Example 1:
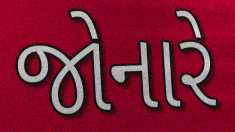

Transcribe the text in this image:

જોનારે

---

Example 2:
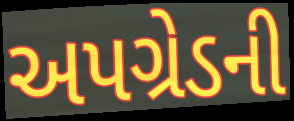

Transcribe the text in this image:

અપગ્રેડની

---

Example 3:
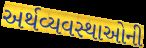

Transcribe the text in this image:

અર્થવ્યવસ્થાઓની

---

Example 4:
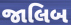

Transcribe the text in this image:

જાલિબ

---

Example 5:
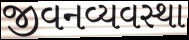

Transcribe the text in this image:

જીવનવ્યવસ્થા